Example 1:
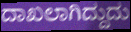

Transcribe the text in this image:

ದಾಖಲಾಗಿದ್ದುದು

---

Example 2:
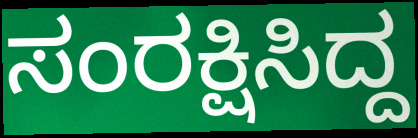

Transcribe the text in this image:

ಸಂರಕ್ಷಿಸಿದ್ದ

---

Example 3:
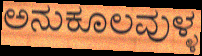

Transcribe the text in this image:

ಅನುಕೂಲವುಳ್ಳ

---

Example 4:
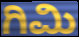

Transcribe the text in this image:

ಗಿಮಿ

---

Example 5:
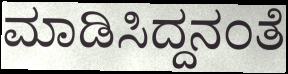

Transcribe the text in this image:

ಮಾಡಿಸಿದ್ದನಂತೆ